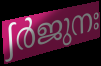
ഽർജുനഃ